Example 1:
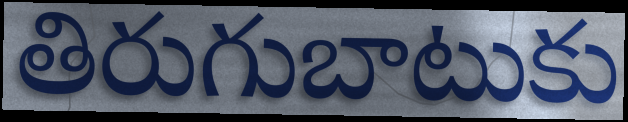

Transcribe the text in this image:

తిరుగుబాటుకు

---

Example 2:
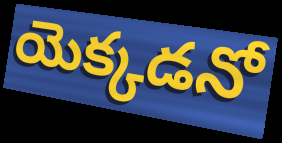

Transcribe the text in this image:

యెక్కడనో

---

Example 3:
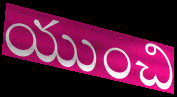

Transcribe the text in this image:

యుంచి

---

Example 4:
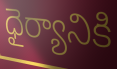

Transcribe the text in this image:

ధైర్యానికి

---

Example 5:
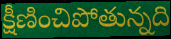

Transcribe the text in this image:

క్షీణించిపోతున్నది